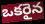
ఒకరైన